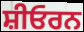
ਸ਼ੀਓਰਨ